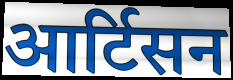
आर्टिसन